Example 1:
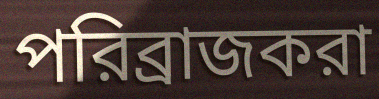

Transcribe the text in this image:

পরিব্রাজকরা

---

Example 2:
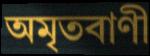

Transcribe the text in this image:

অমৃতবাণী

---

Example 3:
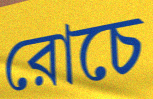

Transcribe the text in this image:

রোচে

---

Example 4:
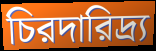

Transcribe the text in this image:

চিরদারিদ্র্য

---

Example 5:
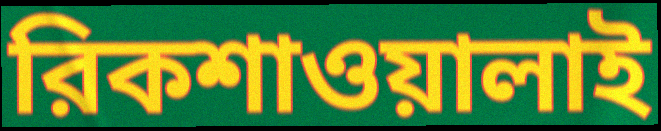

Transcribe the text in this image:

রিকশাওয়ালাই